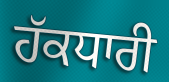
ਹੱਕਧਾਰੀ